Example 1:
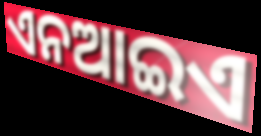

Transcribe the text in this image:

ଏନଆଇଏ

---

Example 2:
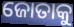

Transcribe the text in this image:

ଜୋତାକୁ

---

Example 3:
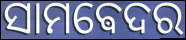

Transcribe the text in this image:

ସାମଵେଦର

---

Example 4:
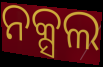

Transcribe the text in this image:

ନକ୍ସଲ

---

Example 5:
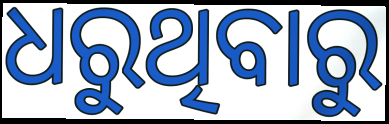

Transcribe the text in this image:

ଧରୁଥିବାରୁ